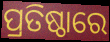
ପ୍ରତିଷ୍ଠାରେ